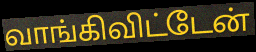
வாங்கிவிட்டேன்